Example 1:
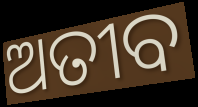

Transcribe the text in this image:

ଅତୀବ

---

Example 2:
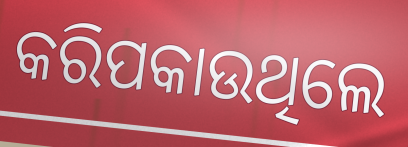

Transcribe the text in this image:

କରିପକାଉଥିଲେ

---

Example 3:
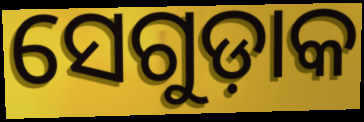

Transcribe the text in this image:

ସେଗୁଡ଼ାକ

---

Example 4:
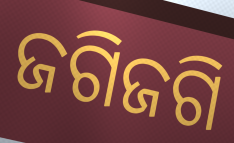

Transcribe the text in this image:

ଜଗିଜଗି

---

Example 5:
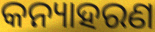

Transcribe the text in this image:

କନ୍ୟାହରଣ